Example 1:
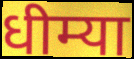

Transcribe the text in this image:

धीम्या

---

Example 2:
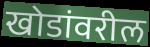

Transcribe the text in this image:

खोडांवरील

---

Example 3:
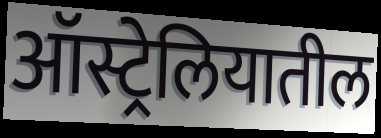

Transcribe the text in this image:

ऑस्ट्रेलियातील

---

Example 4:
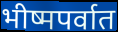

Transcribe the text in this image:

भीष्मपर्वात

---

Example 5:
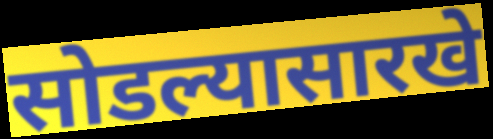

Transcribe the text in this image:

सोडल्यासारखे